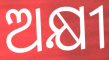
ଅକ୍ଷୀ